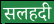
सलहदी